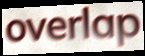
overlap